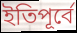
ইতিপূর্বে